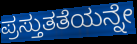
ಪ್ರಸ್ತುತತೆಯನ್ನೇ